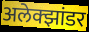
अलेक्झांडर